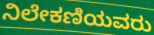
ನಿಲೇಕಣಿಯವರು